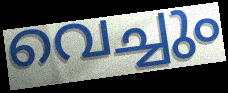
വെച്ചും